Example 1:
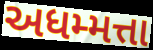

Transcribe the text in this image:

અધમ્મત્તા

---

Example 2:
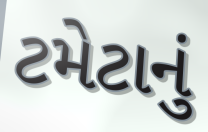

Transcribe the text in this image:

ટમેટાનું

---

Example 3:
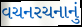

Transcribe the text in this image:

વચનરચનાનું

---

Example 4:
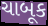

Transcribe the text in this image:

ચાબૂક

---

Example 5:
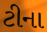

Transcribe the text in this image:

ટીના